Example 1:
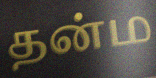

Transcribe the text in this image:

தன்ம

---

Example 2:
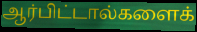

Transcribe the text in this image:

ஆர்பிட்டால்களைக்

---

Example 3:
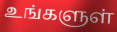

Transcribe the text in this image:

உங்களுள்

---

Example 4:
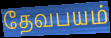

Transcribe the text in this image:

தேவபயம்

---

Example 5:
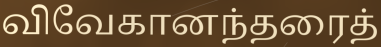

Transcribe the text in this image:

விவேகானந்தரைத்